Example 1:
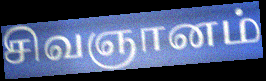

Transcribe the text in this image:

சிவஞானம்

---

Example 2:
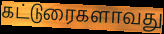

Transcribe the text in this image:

கட்டுரைகளாவது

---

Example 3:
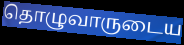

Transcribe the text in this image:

தொழுவாருடைய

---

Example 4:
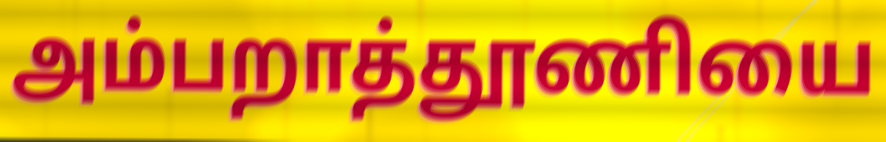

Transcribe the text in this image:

அம்பறாத்தூணியை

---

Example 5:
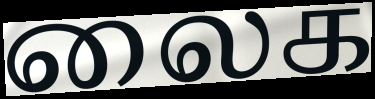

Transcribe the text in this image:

லைக